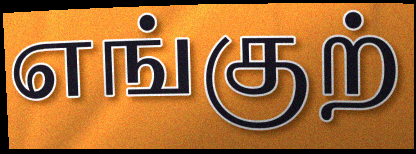
எங்குற்